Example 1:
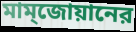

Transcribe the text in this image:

মাম্জোয়ানের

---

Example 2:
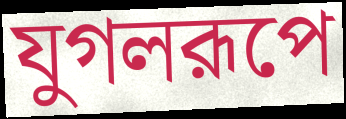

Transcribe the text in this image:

যুগলরূপে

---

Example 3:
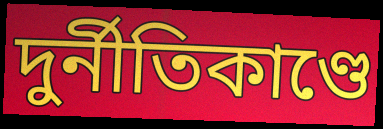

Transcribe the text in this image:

দুর্নীতিকাণ্ডে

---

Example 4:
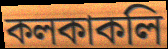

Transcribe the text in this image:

কলকাকলি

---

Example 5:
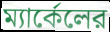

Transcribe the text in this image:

ম্যার্কেলের